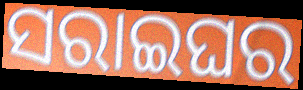
ସରାଇଘର